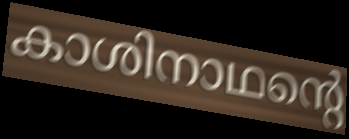
കാശിനാഥന്റെ